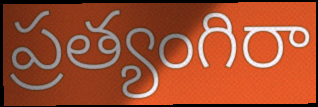
ప్రత్యంగిరా